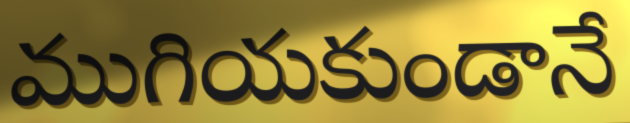
ముగియకుండానే